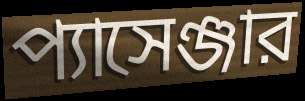
প্যাসেঞ্জার